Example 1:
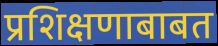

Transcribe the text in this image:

प्रशिक्षणाबाबत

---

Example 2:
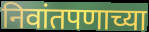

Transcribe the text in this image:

निवांतपणाच्या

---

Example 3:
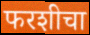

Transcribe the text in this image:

फरशीचा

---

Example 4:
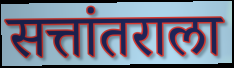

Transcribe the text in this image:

सत्तांतराला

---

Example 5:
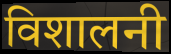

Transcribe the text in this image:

विशालनी